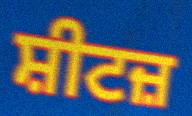
ਸ਼ੀਟਜ਼